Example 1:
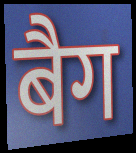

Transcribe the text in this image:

बैग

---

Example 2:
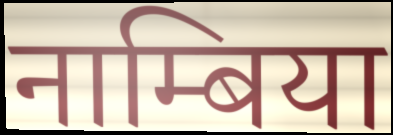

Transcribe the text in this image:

नाम्बिया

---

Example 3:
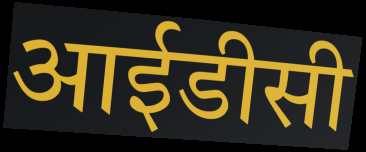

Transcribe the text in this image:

आईडीसी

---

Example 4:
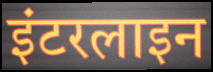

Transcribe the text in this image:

इंटरलाइन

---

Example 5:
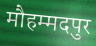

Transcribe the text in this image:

मौहम्मदपुर